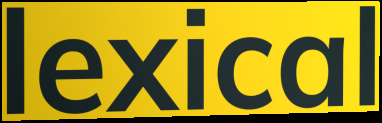
lexical